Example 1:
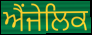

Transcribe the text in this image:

ਐਂਜੇਲਿਕ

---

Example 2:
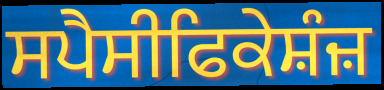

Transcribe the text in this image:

ਸਪੈਸੀਫਿਕੇਸ਼ੰਜ਼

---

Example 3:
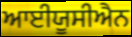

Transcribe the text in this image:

ਆਈਯੂਸੀਐਨ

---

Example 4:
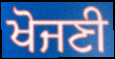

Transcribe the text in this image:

ਖੋਜਣੀ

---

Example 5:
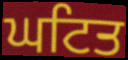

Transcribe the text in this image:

ਘਟਿਤ